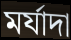
মৰ্যাদা